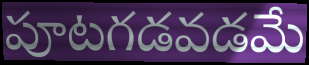
పూటగడవడమే